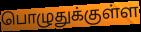
பொழுதுக்குள்ள